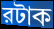
রটাক